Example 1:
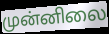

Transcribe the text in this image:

முன்னிலை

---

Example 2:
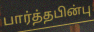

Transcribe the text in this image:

பார்த்தபின்பு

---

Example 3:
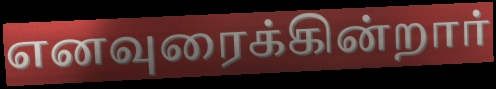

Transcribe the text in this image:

எனவுரைக்கின்றார்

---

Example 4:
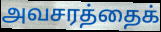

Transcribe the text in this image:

அவசரத்தைக்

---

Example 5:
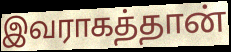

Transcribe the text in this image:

இவராகத்தான்